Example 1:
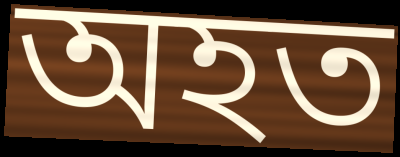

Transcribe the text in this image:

অহত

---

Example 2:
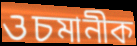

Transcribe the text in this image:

ওচমানীক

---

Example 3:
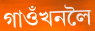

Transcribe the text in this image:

গাওঁখনলৈ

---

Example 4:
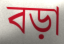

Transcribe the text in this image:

বড়া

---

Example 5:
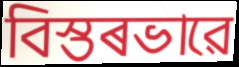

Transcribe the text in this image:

বিস্তৰভাৱে